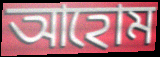
আহোম